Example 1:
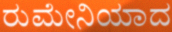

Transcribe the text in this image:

ರುಮೇನಿಯಾದ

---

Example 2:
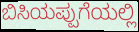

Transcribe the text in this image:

ಬಿಸಿಯಪ್ಪುಗೆಯಲ್ಲಿ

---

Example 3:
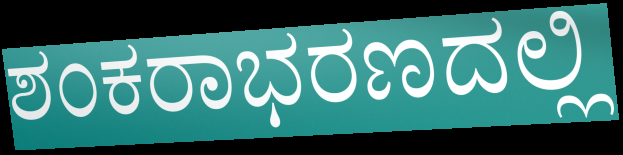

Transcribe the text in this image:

ಶಂಕರಾಭರಣದಲ್ಲಿ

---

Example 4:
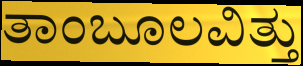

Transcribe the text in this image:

ತಾಂಬೂಲವಿತ್ತು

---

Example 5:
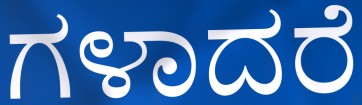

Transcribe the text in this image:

ಗಳಾದರೆ